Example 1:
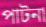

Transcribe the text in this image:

পাটনা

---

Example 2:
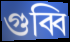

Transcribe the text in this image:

গুব্বি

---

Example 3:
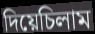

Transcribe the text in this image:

দিয়েচিলাম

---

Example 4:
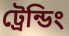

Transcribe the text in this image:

ট্রেন্ডিং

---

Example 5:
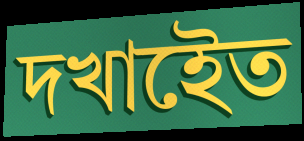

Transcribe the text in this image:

দখাইেত